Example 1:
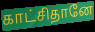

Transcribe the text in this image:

காட்சிதானே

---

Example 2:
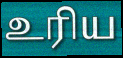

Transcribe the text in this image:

உரிய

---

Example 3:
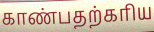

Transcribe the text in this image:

காண்பதற்கரிய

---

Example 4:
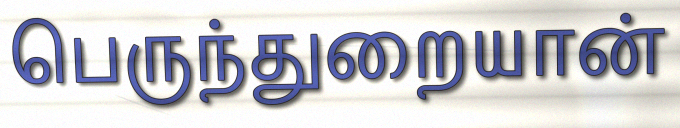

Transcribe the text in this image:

பெருந்துறையான்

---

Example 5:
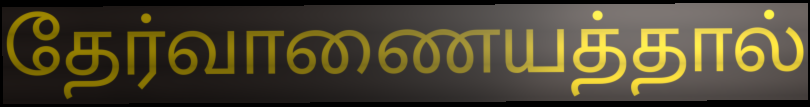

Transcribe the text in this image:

தேர்வாணையத்தால்